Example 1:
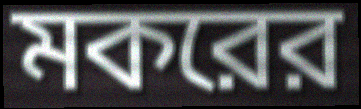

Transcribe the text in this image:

মকরের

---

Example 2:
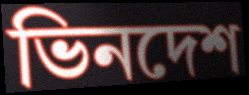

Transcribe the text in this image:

ভিনদেশ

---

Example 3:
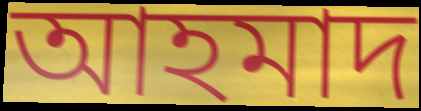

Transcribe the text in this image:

আহমাদ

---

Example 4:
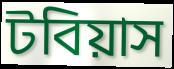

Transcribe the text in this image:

টবিয়াস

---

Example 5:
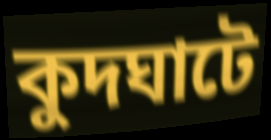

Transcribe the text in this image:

কুদঘাটে